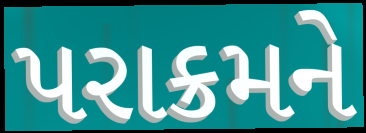
પરાક્રમને